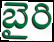
బైరి